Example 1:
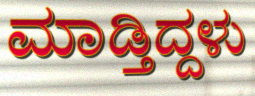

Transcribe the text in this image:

ಮಾಡ್ತಿದ್ದಳು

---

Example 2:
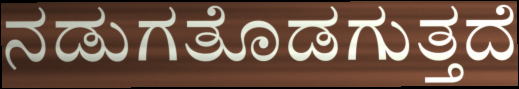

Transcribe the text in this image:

ನಡುಗತೊಡಗುತ್ತದೆ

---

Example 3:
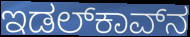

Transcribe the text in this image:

ಇಡಲ್‌ಕಾವ್‌ನ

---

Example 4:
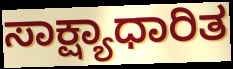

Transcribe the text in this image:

ಸಾಕ್ಷ್ಯಾಧಾರಿತ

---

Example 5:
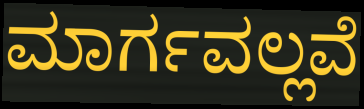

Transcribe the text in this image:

ಮಾರ್ಗವಲ್ಲವೆ